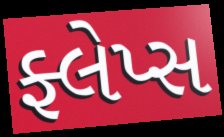
ફ્લેપ્સ